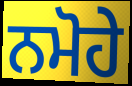
ਨਮੋਹੇ